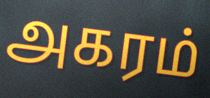
அகரம்